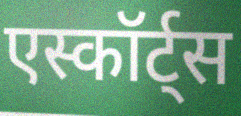
एस्कॉर्ट्स